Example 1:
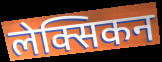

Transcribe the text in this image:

लेक्सिकन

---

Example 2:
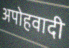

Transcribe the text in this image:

अपोहवादी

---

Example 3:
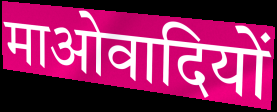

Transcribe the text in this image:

माओवादियों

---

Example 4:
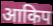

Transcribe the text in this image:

आकिप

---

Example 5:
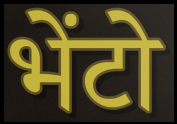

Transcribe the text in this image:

भेंटो